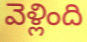
వెళ్లింది